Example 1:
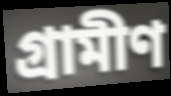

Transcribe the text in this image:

গ্ৰামীণ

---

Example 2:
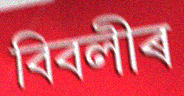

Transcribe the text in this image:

বিবলীৰ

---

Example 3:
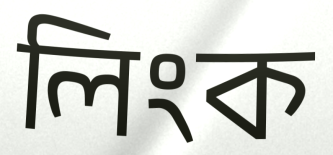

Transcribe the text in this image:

লিংক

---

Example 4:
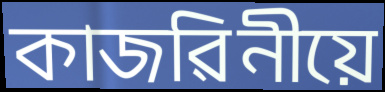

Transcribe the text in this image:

কাজৱিনীয়ে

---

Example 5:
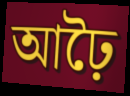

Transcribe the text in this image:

আঢ়ৈ